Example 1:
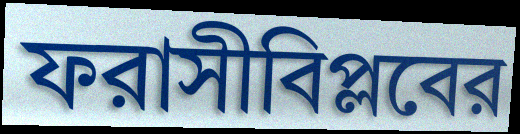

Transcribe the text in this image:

ফরাসীবিপ্লবের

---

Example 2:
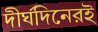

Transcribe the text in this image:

দীর্ঘদিনেরই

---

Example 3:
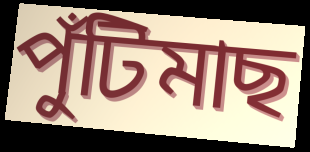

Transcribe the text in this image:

পুঁটিমাছ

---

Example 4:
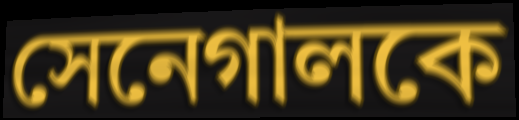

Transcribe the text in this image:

সেনেগালকে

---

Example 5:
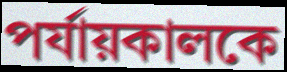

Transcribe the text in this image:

পর্যায়কালকে